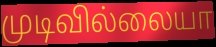
முடிவில்லையா